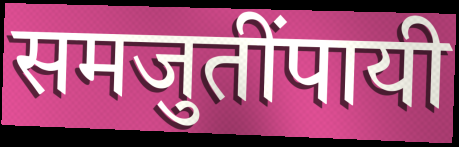
समजुतींपायी